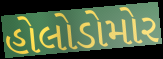
હોલોડોમોર